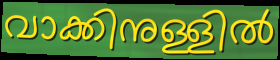
വാക്കിനുള്ളിൽ